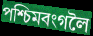
পশ্চিমবংগলৈ